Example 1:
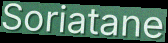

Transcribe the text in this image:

Soriatane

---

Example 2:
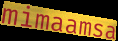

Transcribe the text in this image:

mimaamsa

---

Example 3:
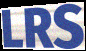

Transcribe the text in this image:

LRS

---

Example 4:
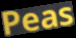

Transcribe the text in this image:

Peas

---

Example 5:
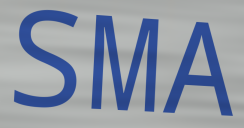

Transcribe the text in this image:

SMA